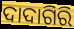
ଦାଦାଗିରି